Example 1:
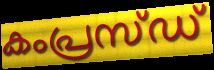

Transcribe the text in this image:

കംപ്രസ്ഡ്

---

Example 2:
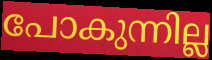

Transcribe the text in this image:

പോകുന്നില്ല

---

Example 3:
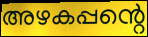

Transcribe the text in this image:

അഴകപ്പന്റെ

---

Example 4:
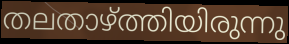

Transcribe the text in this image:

തലതാഴ്ത്തിയിരുന്നു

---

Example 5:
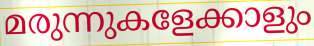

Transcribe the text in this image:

മരുന്നുകളേക്കാളും